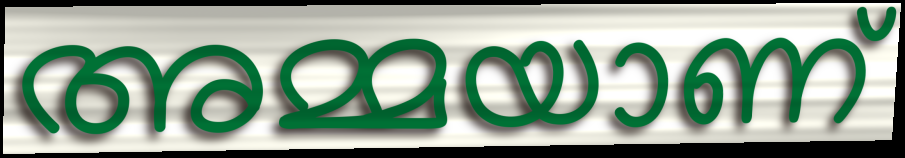
അമ്മയാണ്